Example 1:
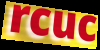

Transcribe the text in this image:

rcuc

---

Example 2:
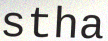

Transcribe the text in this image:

stha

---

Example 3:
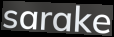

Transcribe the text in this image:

sarake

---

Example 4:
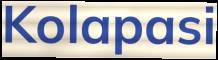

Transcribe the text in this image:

Kolapasi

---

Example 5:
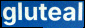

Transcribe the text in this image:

gluteal